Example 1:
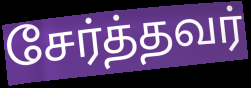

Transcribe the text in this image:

சேர்த்தவர்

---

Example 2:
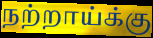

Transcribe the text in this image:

நற்றாய்க்கு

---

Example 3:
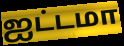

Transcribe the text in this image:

ஐட்டமா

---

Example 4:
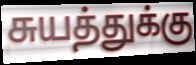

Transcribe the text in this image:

சுயத்துக்கு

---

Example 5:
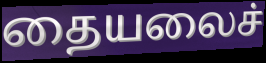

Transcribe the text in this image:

தையலைச்